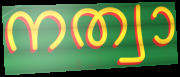
നത്വാ